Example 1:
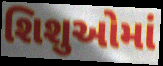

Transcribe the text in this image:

શિશુઓમાં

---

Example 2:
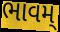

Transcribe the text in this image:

ભાવમ્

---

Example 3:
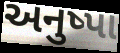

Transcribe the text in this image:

અનુષ્પા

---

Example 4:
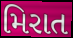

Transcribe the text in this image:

મિરાત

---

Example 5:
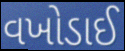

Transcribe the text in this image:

વખોડાઈ